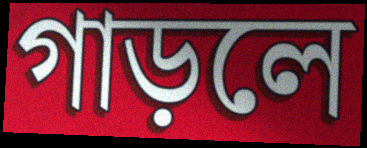
গাড়লে